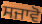
ਸਜਾਵੋ